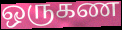
ஒருகண